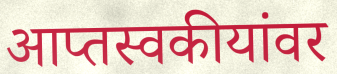
आप्तस्वकीयांवर